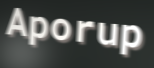
Aporup